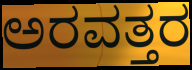
ಅರವತ್ತರ